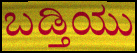
ಬಡ್ತಿಯು